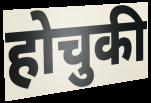
होचुकी